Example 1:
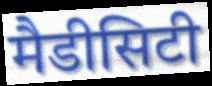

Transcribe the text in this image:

मैडीसिटी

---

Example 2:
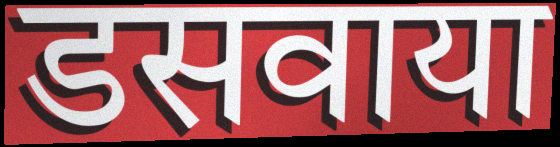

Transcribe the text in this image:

डसवाया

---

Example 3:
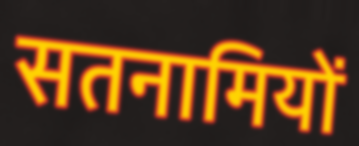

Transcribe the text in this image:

सतनामियों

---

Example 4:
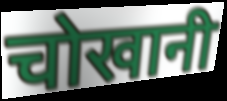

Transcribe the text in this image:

चोखानी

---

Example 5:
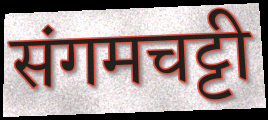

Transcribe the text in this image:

संगमचट्टी